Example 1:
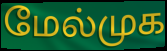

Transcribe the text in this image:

மேல்முக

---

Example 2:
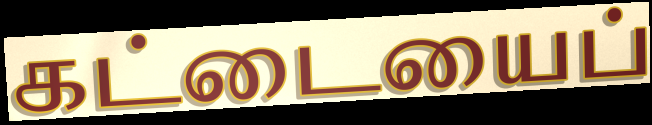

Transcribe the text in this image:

கட்டையைப்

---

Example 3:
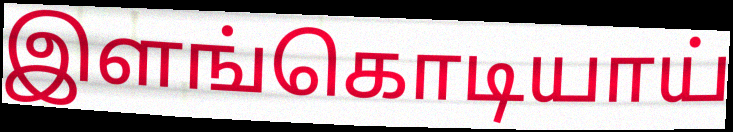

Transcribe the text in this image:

இளங்கொடியாய்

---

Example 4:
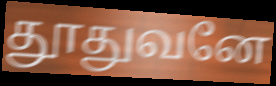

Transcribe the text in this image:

தூதுவனே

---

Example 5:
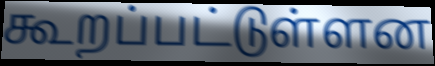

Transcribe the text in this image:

கூறப்பட்டுள்ளன